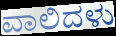
ವಾಲಿದಳು